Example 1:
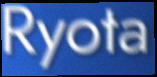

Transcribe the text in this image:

Ryota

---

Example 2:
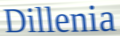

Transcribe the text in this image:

Dillenia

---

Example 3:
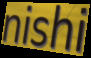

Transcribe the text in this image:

nishi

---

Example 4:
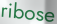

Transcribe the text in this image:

ribose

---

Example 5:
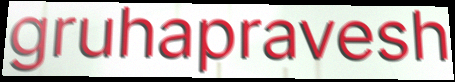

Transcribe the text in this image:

gruhapravesh